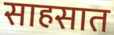
साहसात